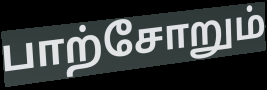
பாற்சோறும்